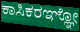
ಕಾಸಿಕರಞ್ಞೋ